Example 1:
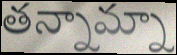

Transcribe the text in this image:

తన్నామ్నా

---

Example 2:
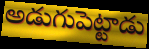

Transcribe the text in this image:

అడుగుపెట్టాడు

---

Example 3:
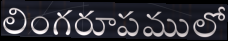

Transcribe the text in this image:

లింగరూపములో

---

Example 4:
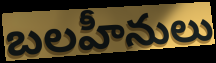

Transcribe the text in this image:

బలహీనులు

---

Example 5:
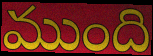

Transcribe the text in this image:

ముంది